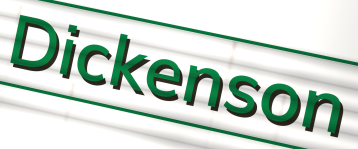
Dickenson